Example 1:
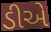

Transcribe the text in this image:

ડીએ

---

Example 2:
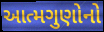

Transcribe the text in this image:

આત્મગુણોનો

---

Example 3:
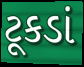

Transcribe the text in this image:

ટૂકડાં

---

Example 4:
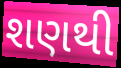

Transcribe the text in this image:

શણથી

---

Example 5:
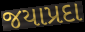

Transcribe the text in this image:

જયાપ્રદા